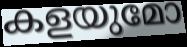
കളയുമോ